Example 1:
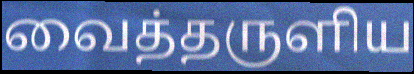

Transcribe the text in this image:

வைத்தருளிய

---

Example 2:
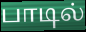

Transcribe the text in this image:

பாடில்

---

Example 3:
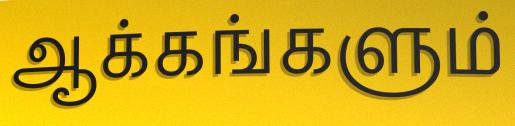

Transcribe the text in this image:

ஆக்கங்களும்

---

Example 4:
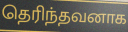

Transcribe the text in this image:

தெரிந்தவனாக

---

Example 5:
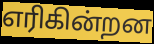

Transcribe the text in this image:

எரிகின்றன